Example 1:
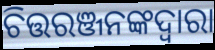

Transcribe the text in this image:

ଚିତ୍ତରଞ୍ଜନଙ୍କଦ୍ଵାରା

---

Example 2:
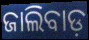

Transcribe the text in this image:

ଜାଲିବାଡ଼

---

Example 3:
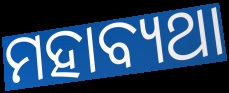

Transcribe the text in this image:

ମହାବ୍ୟଥା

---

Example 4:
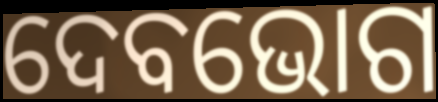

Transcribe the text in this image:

ଦେବଭୋଗ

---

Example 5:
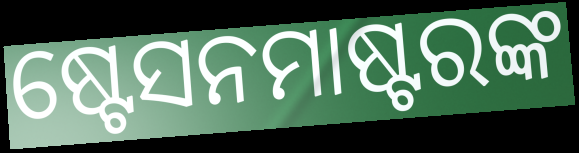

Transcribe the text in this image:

ଷ୍ଟେସନମାଷ୍ଟରଙ୍କ